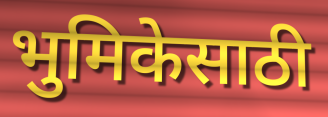
भुमिकेसाठी